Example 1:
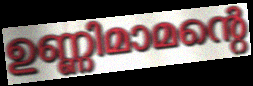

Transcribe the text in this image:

ഉണ്ണിമാമന്റെ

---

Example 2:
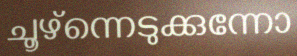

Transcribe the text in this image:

ചൂഴ്ന്നെടുക്കുന്നോ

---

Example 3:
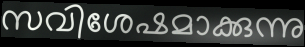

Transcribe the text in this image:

സവിശേഷമാക്കുന്നു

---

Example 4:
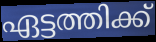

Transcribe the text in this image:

ഏട്ടത്തിക്ക്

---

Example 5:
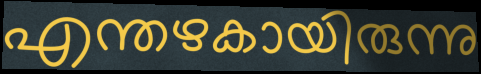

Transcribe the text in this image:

എന്തഴകായിരുന്നു